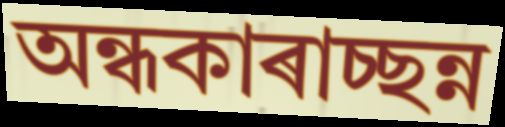
অন্ধকাৰাচ্ছন্ন